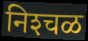
निश्‍चळ